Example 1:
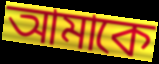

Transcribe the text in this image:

আমাকে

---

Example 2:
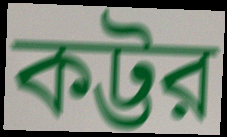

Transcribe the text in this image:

কট্টর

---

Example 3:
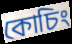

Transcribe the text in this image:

কোচিং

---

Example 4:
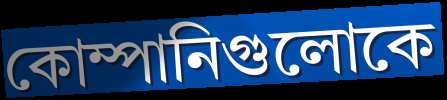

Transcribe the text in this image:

কোম্পানিগুলোকে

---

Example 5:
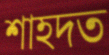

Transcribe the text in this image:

শাহদত